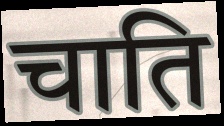
चाति